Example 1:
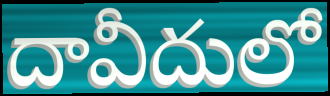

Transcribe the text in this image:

దావీదులో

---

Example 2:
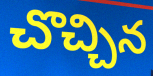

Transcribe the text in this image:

చొచ్చిన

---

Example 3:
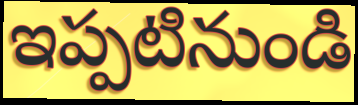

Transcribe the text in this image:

ఇప్పటినుండి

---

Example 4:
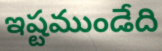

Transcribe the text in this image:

ఇష్టముండేది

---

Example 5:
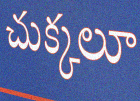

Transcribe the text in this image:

చుక్కలూ